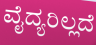
ವೈದ್ಯರಿಲ್ಲದೆ